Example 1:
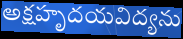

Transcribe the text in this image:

అక్షహృదయవిద్యను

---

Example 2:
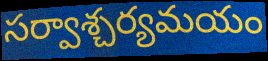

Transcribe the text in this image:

సర్వాశ్చర్యమయం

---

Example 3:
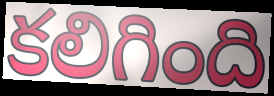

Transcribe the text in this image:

కలిగింది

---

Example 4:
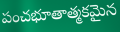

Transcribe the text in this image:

పంచభూతాత్మకమైన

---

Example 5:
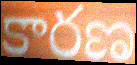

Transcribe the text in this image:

కారణ